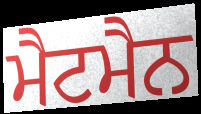
ਮੈਟਮੈਨ